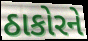
ઠાકોરને